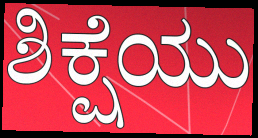
ಶಿಕ್ಷೆಯು